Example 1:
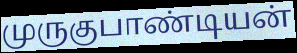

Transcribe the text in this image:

முருகுபாண்டியன்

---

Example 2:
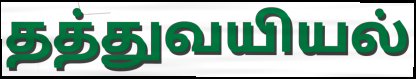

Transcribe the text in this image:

தத்துவயியல்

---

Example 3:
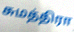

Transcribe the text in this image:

சுமத்திரா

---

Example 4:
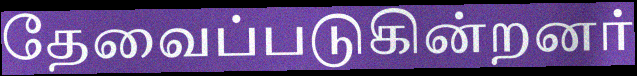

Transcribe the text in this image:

தேவைப்படுகின்றனர்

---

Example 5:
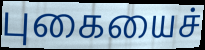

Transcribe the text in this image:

புகையைச்